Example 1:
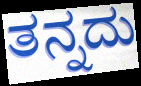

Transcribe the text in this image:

ತನ್ನದು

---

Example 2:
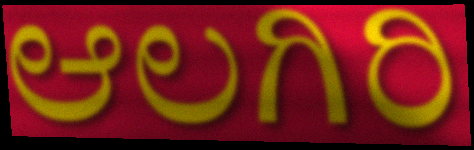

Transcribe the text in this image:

ಆಲಗಿರಿ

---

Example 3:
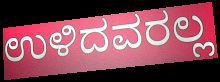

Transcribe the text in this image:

ಉಳಿದವರಲ್ಲ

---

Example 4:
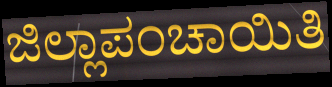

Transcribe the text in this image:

ಜಿಲ್ಲಾಪಂಚಾಯಿತಿ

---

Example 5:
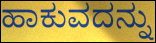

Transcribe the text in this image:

ಹಾಕುವದನ್ನು